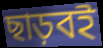
ছাড়বই